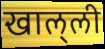
खाल्ली